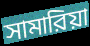
সামারিয়া